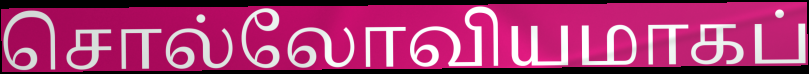
சொல்லோவியமாகப்